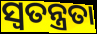
ସ୍ବତନ୍ତ୍ରତା